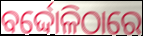
ବର୍ଦ୍ଦୋଳିଠାରେ